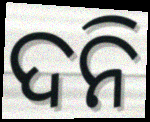
ଦନି